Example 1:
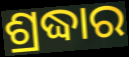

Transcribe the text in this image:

ଶ୍ରଦ୍ଧାର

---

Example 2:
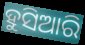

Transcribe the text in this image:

ହୁସିଆରି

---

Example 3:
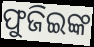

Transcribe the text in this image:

ଫୁଜିଇଙ୍କ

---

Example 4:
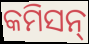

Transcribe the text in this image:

କମିସନ୍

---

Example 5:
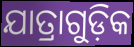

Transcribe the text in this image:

ଯାତ୍ରାଗୁଡ଼ିକ